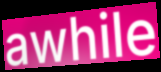
awhile